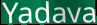
Yadava